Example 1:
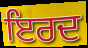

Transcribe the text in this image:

ਇਰਦ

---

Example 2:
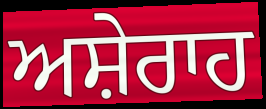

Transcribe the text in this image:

ਅਸ਼ੇਰਾਹ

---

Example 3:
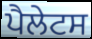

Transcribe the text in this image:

ਪੈਲੇਟਸ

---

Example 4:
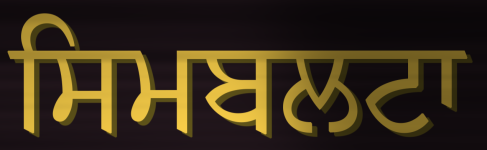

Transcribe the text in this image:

ਸਿਮਬਲਟਾ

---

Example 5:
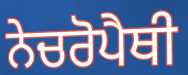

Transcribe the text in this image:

ਨੇਚਰੋਪੈਥੀ